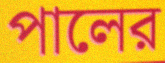
পালের